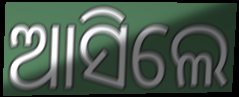
ଆସିଲେ